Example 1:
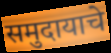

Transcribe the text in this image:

समुदायाचे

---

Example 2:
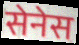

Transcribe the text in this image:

सेनेस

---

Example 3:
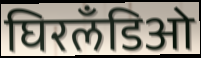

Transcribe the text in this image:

घिरलँडिओ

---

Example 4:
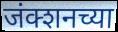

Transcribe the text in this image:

जंक्शनच्या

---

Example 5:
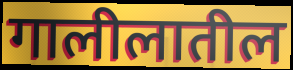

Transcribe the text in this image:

गालीलातील